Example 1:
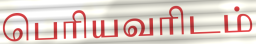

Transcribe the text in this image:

பெரியவரிடம்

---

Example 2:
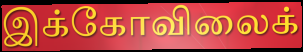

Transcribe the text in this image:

இக்கோவிலைக்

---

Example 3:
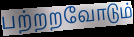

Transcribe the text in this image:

பற்றறவோடும்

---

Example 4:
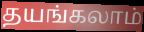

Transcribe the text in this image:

தயங்கலாம்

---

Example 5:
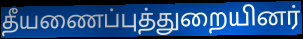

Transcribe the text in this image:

தீயணைப்புத்துறையினர்